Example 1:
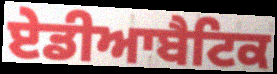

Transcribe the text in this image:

ਏਡੀਆਬੈਟਿਕ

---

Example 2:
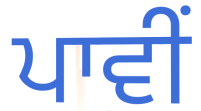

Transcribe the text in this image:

ਪਾਵੀਂ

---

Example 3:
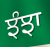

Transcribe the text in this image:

ਝੰਝਾ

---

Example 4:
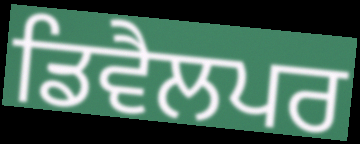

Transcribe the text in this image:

ਡਿਵੈਲਪਰ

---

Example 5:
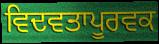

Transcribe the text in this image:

ਵਿਦਵਤਾਪੂਰਵਕ